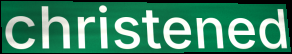
christened